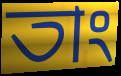
তাং